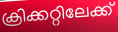
ക്രിക്കറ്റിലേക്ക്